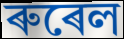
ৰুৰেল